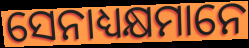
ସେନାଧ୍ୟକ୍ଷମାନେ